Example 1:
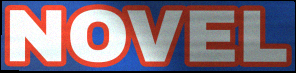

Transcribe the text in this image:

NOVEL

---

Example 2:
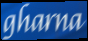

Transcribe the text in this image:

gharna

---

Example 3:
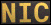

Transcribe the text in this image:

NIC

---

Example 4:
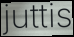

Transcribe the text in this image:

juttis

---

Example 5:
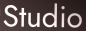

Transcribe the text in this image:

Studio